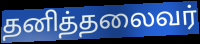
தனித்தலைவர்